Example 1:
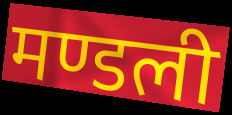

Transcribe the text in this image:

मण्डली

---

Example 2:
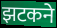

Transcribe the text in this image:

झटकने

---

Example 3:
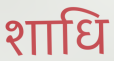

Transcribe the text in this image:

शाधि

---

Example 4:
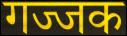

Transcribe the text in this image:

गज्जक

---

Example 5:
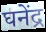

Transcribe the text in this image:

घनेंद्र